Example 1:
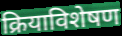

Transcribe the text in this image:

क्रियाविशेषण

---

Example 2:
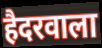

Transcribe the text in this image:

हैदरवाला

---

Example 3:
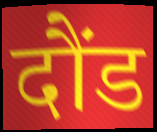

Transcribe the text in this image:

दौंड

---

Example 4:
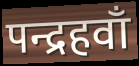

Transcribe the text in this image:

पन्द्रहवाँ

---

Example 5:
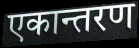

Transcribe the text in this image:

एकान्तरण